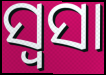
ସ୍ୱସା